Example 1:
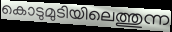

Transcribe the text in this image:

കൊടുമുടിയിലെത്തുന്ന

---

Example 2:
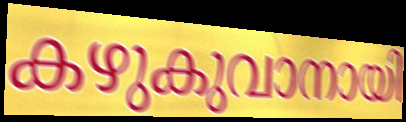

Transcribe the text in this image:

കഴുകുവാനായി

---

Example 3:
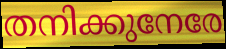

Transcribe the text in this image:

തനിക്കുനേരേ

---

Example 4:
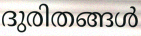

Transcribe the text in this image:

ദുരിതങ്ങൾ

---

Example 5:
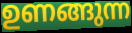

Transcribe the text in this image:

ഉണങ്ങുന്ന